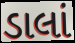
ડાલાં